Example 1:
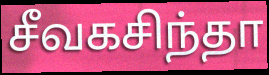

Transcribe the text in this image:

சீவகசிந்தா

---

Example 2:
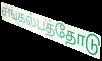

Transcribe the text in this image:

சங்கல்பத்தோடு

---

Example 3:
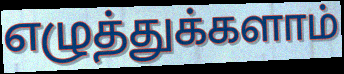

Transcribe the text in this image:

எழுத்துக்களாம்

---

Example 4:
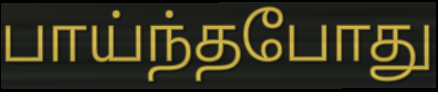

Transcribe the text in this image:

பாய்ந்தபோது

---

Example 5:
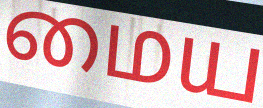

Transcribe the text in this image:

மைய